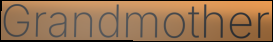
Grandmother